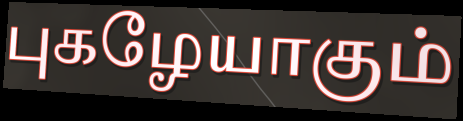
புகழேயாகும்